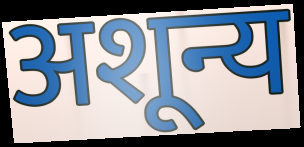
अशून्य